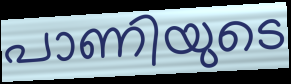
പാണിയുടെ